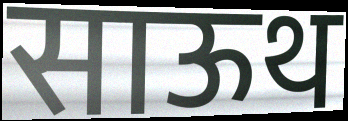
साऊथ